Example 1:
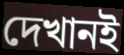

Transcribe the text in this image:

দেখানই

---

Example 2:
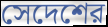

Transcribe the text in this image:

সেদেশের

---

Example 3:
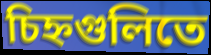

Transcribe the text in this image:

চিহ্নগুলিতে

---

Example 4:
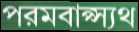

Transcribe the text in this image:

পরমবাপ্স্যথ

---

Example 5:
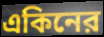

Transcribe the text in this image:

একিনের